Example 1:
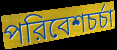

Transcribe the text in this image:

পরিবেশচর্চা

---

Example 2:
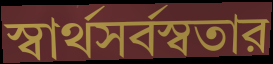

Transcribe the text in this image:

স্বার্থসর্বস্বতার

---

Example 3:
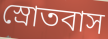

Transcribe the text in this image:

স্রোতবাস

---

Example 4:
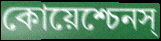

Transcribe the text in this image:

কোয়েশ্চেনস্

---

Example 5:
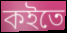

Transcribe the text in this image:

কইতে